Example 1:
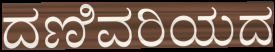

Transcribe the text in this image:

ದಣಿವರಿಯದ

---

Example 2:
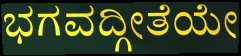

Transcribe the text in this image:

ಭಗವದ್ಗೀತೆಯೇ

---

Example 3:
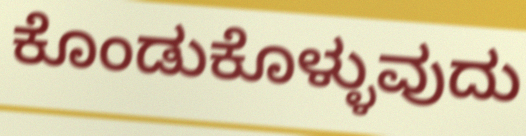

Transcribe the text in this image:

ಕೊಂಡುಕೊಳ್ಳುವುದು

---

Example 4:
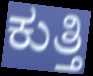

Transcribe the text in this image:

ಕುತ್ತಿ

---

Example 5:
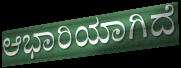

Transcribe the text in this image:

ಆಭಾರಿಯಾಗಿದೆ